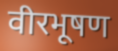
वीरभूषण